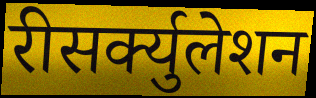
रीसर्क्युलेशन